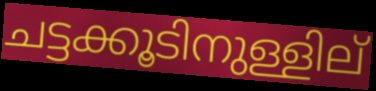
ചട്ടക്കൂടിനുള്ളില്